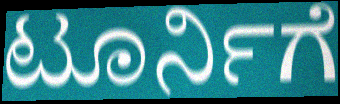
ಟೂರ್ನಿಗೆ